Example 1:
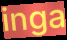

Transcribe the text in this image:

inga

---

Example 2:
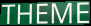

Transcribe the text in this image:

THEME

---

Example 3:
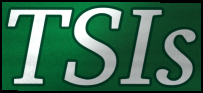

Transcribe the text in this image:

TSIs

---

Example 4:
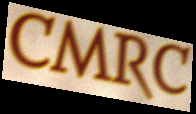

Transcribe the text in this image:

CMRC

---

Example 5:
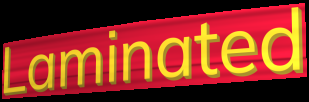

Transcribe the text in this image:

Laminated